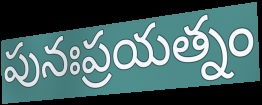
పునఃప్రయత్నం